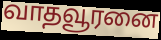
வாதவூரனை